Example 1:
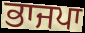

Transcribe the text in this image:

ਭਾਜਪਾ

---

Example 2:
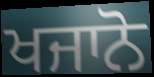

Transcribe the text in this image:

ਖਜਾਨੋ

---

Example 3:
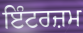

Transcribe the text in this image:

ਇੰਟਰਜ਼ਮ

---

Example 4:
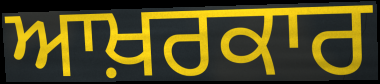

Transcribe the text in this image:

ਆਖ਼ਰਕਾਰ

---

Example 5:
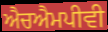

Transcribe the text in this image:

ਐਚਐਮਪੀਵੀ